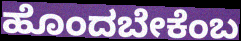
ಹೊಂದಬೇಕೆಂಬ